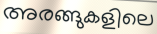
അരങ്ങുകളിലെ